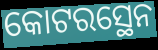
କୋଟରସ୍ଥେନ